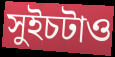
সুইচটাও